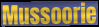
Mussoorie